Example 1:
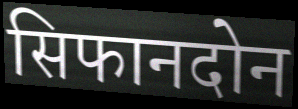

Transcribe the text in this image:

सिफानदोन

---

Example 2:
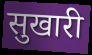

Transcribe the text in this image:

सुखारी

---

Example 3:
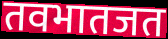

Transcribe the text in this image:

तवभातजत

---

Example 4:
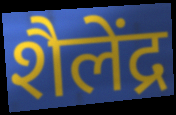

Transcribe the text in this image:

शैलेंद्र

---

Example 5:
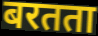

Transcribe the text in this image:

बरतता